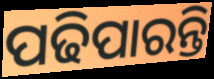
ପଢିପାରନ୍ତି